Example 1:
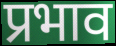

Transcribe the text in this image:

प्रभाव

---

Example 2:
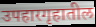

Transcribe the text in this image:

उपहारगृहातील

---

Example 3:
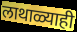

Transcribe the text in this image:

लाथाळ्याही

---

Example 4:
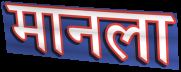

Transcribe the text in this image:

मानला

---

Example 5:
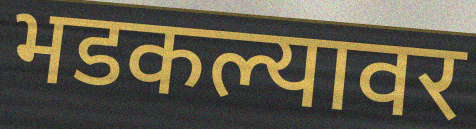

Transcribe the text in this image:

भडकल्यावर